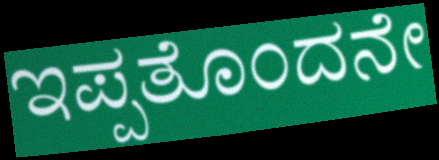
ಇಪ್ಪತೊಂದನೇ